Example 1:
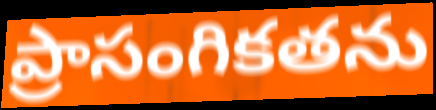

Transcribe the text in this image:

ప్రాసంగికతను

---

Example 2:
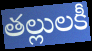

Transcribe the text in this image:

తల్లులకీ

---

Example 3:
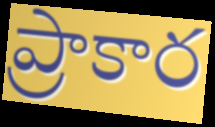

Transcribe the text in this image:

ప్రాకార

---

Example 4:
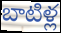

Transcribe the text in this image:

బాటిళ్ల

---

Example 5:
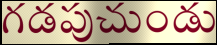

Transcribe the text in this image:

గడపుచుండు